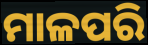
ମାଳପରି